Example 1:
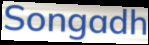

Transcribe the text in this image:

Songadh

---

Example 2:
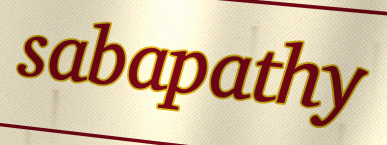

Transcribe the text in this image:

sabapathy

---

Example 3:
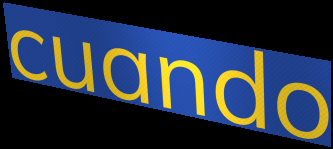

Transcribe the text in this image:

cuando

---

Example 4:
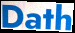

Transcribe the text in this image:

Dath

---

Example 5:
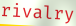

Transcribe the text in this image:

rivalry